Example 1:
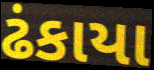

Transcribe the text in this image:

ઢંકાયા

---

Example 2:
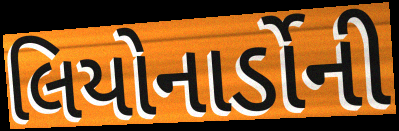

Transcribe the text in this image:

લિયોનાર્ડોની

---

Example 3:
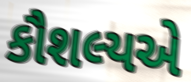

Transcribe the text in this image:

કૌશલ્યએ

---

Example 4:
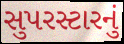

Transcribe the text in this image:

સુપરસ્ટારનું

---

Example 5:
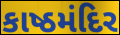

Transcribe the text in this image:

કાષ્ઠમંદિર